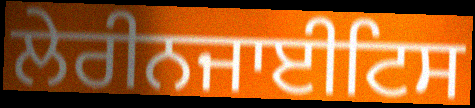
ਲੇਰੀਨਜਾਈਟਿਸ